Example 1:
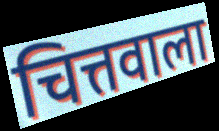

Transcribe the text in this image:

चित्तवाला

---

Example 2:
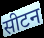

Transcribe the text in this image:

सीटन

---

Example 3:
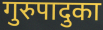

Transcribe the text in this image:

गुरुपादुका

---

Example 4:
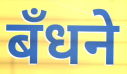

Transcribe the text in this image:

बँधने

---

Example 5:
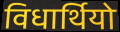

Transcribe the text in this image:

विधार्थियो